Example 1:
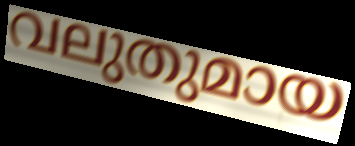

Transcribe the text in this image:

വലുതുമായ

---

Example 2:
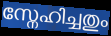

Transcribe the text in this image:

സ്നേഹിച്ചതും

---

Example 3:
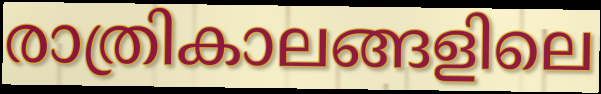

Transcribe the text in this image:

രാത്രികാലങ്ങളിലെ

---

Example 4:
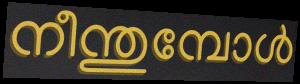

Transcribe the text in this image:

നീന്തുമ്പോൾ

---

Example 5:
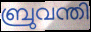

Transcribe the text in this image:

ബ്രുവന്തി